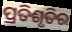
ପ୍ରତିଶୃତିର